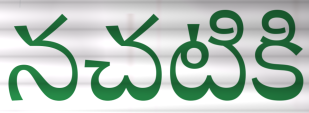
నచటికి